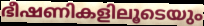
ഭീഷണികളിലൂടെയും